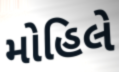
મોહિલે